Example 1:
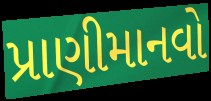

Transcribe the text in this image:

પ્રાણીમાનવો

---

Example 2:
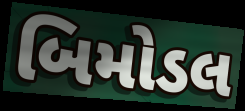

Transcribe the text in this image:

બિમોડલ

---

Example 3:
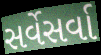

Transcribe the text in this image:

સર્વેસર્વા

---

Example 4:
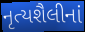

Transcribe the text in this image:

નૃત્યશૈલીનાં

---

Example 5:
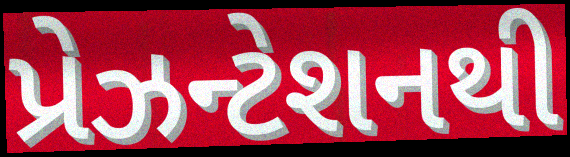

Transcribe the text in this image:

પ્રેઝન્ટેશનથી